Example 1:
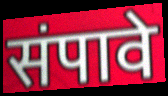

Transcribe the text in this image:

संपावे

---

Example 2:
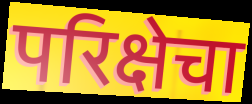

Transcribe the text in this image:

परिक्षेचा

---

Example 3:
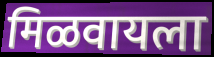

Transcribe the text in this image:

मिळवायला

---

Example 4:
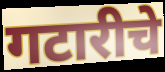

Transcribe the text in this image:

गटारीचे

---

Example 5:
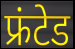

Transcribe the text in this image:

फ्रंटेड